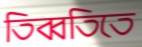
তিব্বতিতে